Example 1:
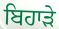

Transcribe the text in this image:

ਬਿਹਾੜੇ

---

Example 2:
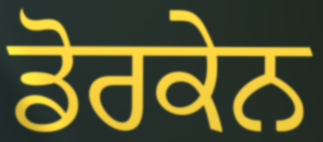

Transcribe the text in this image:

ਡੋਰਕੇਨ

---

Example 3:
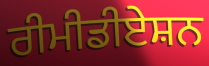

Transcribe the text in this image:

ਰੀਮੀਡੀਏਸ਼ਨ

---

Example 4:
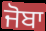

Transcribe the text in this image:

ਜੋਬਾ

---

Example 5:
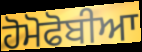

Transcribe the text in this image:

ਹੋਮੋਫੋਬੀਆ